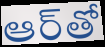
ఆర్‌తో